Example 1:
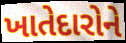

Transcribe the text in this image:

ખાતેદારોને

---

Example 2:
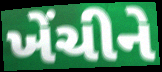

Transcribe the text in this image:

ખેંચીને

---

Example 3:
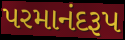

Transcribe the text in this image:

પરમાનંદરૂપ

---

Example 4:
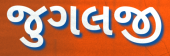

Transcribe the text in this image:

જુગલજી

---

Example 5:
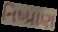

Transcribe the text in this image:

નિષ્પ્રાણ